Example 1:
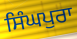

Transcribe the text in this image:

ਸਿੰਘਪੁਰਾ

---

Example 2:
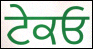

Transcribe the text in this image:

ਟੇਕਓ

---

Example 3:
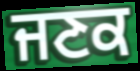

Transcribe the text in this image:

ਜਣਕ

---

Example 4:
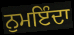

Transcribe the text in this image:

ਨੁਮਇੰਦਾ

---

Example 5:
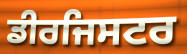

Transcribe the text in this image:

ਡੀਰਜਿਸਟਰ